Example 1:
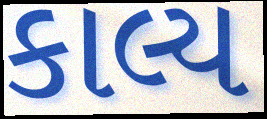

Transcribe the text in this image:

કાલ્ય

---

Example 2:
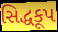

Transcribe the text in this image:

સિદ્ધકૂપ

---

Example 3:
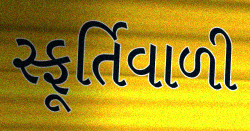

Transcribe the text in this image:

સ્ફૂર્તિવાળી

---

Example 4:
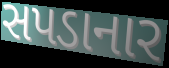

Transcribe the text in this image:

સપડાનાર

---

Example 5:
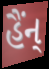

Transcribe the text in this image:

હૈંન્